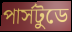
পার্সটুডে